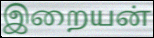
இறையன்